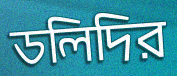
ডলিদির